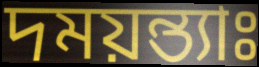
দময়ন্ত্যাঃ